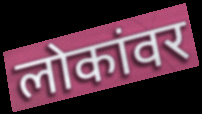
लोकांवर